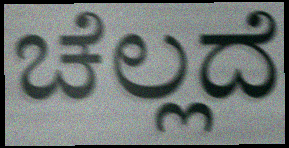
ಚೆಲ್ಲದೆ